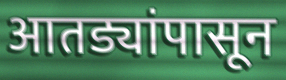
आतड्यांपासून